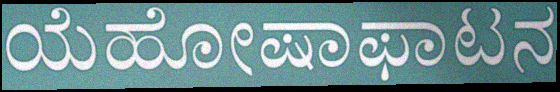
ಯೆಹೋಷಾಫಾಟನ